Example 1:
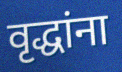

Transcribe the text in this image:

वृद्धांना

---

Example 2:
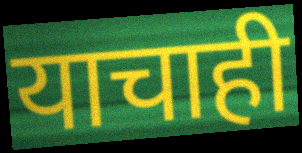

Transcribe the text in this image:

याचाही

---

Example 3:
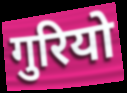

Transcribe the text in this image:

गुरियो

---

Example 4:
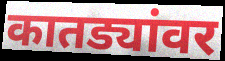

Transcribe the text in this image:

कातड्यांवर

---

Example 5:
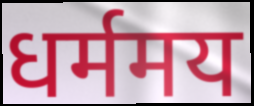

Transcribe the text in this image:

धर्ममय